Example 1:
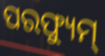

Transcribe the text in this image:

ପରଫ୍ୟୁମ୍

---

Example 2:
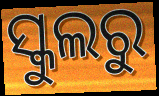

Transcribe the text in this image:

ସ୍କୁଲରୁ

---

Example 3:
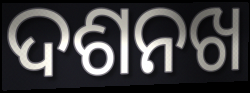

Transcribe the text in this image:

ଦଶନଖ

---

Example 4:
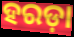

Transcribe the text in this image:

ହରଡ଼ା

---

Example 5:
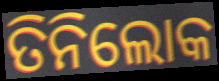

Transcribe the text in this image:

ତିନିଲୋକ